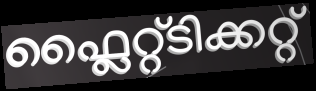
ഫ്ലൈറ്റ്ടിക്കറ്റ്